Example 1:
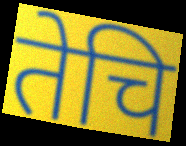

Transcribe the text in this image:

तेचि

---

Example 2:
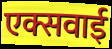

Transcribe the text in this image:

एक्सवाई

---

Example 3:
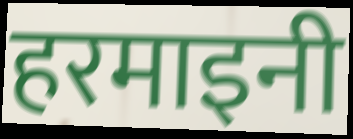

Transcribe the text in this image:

हरमाइनी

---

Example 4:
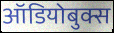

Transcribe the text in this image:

ऑडियोबुक्स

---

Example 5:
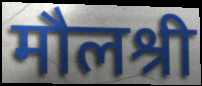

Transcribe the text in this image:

मौलश्री